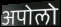
अपोलो